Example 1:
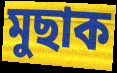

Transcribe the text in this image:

মুছাক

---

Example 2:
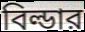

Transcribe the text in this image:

বিল্ডার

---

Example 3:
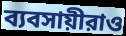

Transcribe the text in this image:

ব্যবসায়ীরাও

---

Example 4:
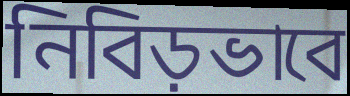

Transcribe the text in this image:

নিবিড়ভাবে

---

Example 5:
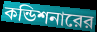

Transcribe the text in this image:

কন্ডিশনারের